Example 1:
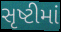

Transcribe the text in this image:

સૃષ્ટીમાં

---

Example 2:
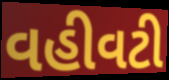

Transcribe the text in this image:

વહીવટી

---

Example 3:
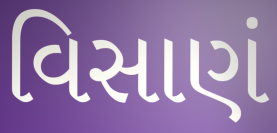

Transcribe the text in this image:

વિસાણં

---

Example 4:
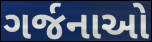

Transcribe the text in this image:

ગર્જનાઓ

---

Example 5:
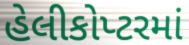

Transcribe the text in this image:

હેલીકોપ્ટરમાં